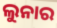
ଲୁନାର